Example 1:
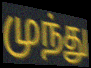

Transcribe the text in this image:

முந்து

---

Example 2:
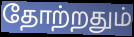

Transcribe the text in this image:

தோற்றதும்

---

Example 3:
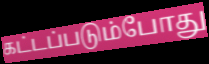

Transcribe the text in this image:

கட்டப்படும்போது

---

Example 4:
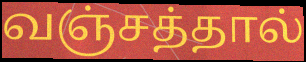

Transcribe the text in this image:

வஞ்சத்தால்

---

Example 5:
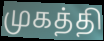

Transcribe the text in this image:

முகத்தி